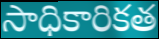
సాధికారికత